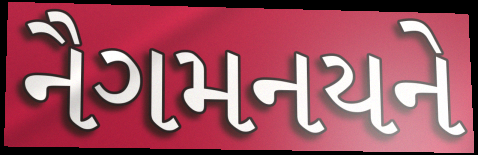
નૈગમનયને